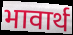
भावार्थ